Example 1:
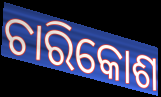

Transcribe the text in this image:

ଚାରିକୋଶ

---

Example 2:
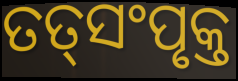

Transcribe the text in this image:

ତତ୍‌ସଂପୃକ୍ତ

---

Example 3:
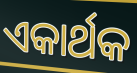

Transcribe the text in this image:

ଏକାର୍ଥକ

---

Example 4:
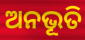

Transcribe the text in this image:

ଅନଭୂତି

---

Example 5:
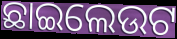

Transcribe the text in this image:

ଛାଇଲେଉଟ